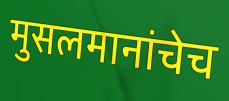
मुसलमानांचेच